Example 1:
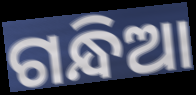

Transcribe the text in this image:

ଗନ୍ଧିଆ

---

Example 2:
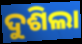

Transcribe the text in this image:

ଦୁଶିଲା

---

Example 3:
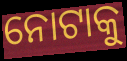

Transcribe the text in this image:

ନୋଟାକୁ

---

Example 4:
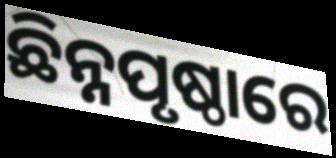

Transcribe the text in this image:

ଛିନ୍ନପୃଷ୍ଠାରେ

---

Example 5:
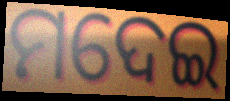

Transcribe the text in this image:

ମଦେଇ